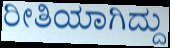
ರೀತಿಯಾಗಿದ್ದು